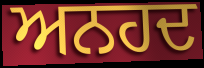
ਅਨਹਦ